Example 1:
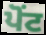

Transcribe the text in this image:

ਪੋਂਟ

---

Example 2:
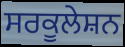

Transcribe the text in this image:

ਸਰਕੂਲੇਸ਼ਨ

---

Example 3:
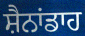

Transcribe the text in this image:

ਸ਼ੈਨਾਂਡਾਹ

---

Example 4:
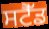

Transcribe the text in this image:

ਸਟੈੱਡ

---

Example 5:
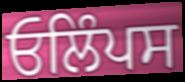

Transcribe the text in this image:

ਓਲਿੰਪਸ